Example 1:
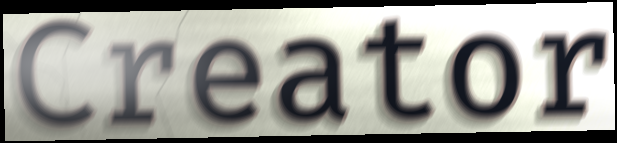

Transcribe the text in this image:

Creator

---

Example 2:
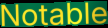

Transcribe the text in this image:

Notable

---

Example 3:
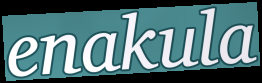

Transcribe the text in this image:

enakula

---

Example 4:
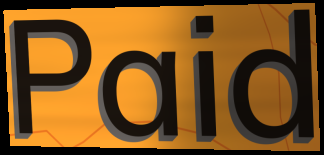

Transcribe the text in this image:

Paid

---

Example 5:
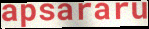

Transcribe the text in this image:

apsararu